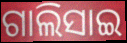
ଗାଲିସାଇ